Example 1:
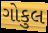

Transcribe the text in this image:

ગોકુલ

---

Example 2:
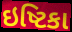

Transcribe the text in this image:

ઇષ્ટિકા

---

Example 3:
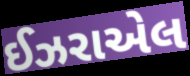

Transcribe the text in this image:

ઈઝરાએલ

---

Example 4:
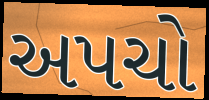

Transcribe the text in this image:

અપચો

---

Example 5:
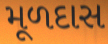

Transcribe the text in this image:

મૂળદાસ